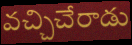
వచ్చిచేరాడు